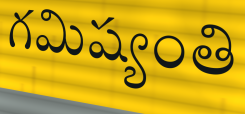
గమిష్యంతి